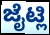
ಜೈಟ್ಲಿ